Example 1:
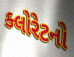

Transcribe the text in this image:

ક્લોરેટનો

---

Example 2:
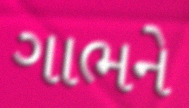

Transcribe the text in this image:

ગાભને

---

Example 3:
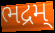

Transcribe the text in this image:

ભદ્રમ્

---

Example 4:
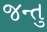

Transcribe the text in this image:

જન્તુ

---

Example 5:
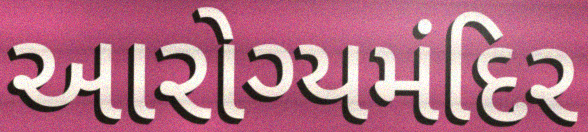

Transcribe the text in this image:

આરોગ્યમંદિર